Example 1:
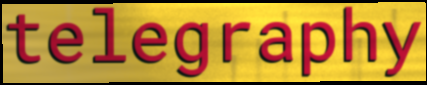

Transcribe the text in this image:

telegraphy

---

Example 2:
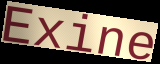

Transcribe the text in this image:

Exine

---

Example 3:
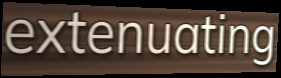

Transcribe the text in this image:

extenuating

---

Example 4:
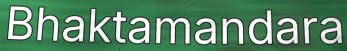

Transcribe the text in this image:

Bhaktamandara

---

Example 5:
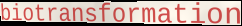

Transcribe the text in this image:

biotransformation